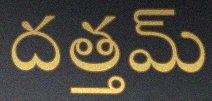
దత్తమ్